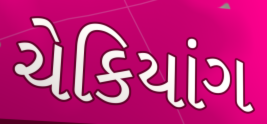
ચેકિયાંગ